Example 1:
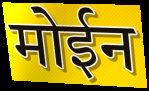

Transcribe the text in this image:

मोईन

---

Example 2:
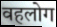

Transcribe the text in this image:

वहलोग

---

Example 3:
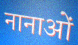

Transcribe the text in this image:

नानाओं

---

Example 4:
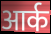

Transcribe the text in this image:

आर्क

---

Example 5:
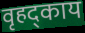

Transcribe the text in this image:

वृहद्काय